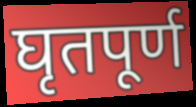
घृतपूर्ण